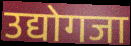
उद्योगजा